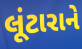
લૂંટારાને